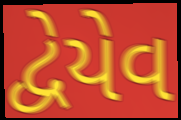
દ્વેયેવ